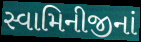
સ્વામિનીજીનાં